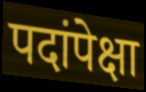
पदांपेक्षा